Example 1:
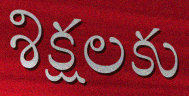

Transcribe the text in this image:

శిక్షలకు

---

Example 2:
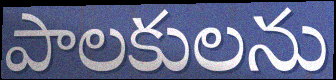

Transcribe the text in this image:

పాలకులను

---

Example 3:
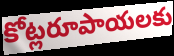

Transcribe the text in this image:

కోట్లరూపాయలకు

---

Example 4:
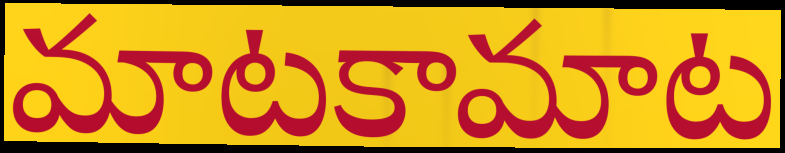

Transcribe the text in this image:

మాటకామాట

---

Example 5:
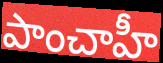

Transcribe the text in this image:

పాంచాహీ